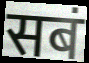
सबं